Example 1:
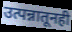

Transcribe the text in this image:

उत्पन्नातूनही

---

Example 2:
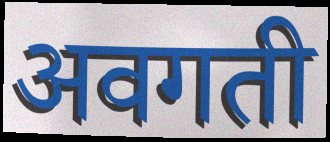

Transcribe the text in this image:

अवगती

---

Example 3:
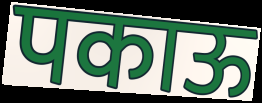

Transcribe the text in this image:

पकाऊ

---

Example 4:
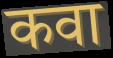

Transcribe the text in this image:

कवा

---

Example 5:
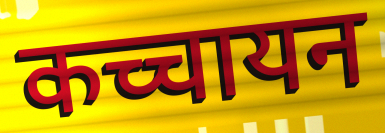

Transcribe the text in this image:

कच्चायन